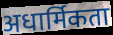
अधार्मिकता